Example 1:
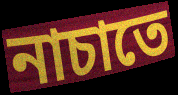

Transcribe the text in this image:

নাচাতে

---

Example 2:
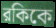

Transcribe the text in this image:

রকিকে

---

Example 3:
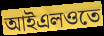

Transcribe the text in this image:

আইএলওতে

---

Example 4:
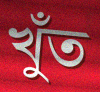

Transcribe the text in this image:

খুঁত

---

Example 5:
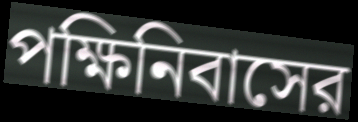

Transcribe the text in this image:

পক্ষিনিবাসের